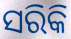
ସରିକି